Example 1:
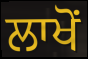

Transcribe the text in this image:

ਲਾਖੋਂ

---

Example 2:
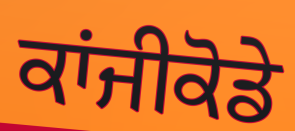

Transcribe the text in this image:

ਕਾਂਜੀਕੋਡੇ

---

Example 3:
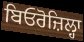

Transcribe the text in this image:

ਬਿਓਰੋਜ਼ਿਲ੍ਹਾ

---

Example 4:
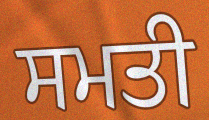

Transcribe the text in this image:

ਸਮਤੀ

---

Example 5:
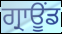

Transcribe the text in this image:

ਗ੍ਰਾਊਂਡ